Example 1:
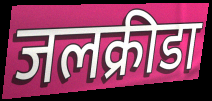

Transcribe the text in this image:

जलक्रीडा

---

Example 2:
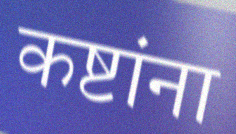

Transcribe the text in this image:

कष्टांना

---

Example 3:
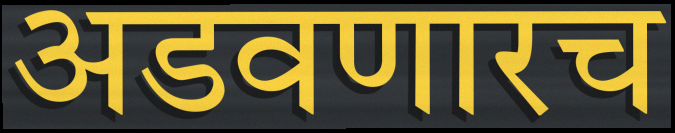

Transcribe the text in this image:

अडवणारच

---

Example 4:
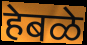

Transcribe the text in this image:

हेबळे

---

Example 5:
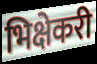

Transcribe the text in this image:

भिक्षेकरी